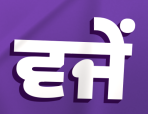
ਵਜੇਂ